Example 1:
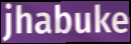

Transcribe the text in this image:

jhabuke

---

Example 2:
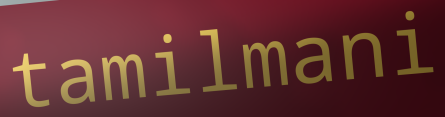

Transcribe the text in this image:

tamilmani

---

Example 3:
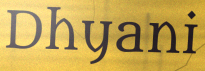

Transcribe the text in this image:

Dhyani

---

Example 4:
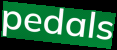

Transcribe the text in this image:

pedals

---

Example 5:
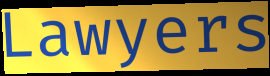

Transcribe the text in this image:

Lawyers